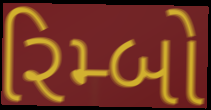
રિમ્બો